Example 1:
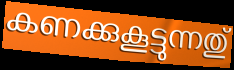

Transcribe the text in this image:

കണക്കുകൂട്ടുന്നതു്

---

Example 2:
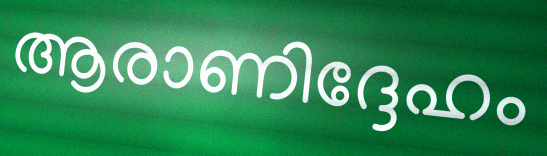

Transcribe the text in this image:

ആരാണിദ്ദേഹം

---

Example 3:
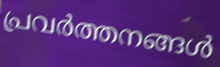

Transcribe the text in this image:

പ്രവർത്തനങ്ങൾ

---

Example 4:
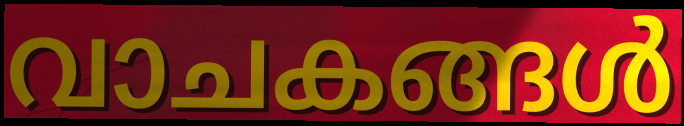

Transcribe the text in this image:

വാചകങ്ങൾ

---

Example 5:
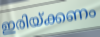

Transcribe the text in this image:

ഇരിയ്ക്കണം